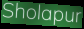
Sholapur